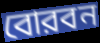
বোরবন